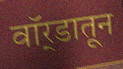
वॉर्डातून